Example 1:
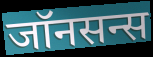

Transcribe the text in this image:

जॉनसन्स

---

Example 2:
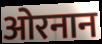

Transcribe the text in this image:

ओरनान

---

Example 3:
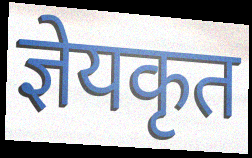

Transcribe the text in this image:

ज्ञेयकृत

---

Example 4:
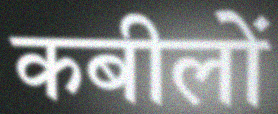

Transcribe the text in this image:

कबीलों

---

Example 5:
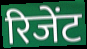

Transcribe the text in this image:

रिजेंट